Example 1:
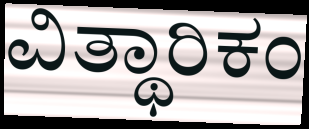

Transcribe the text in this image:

ವಿತ್ಥಾರಿಕಂ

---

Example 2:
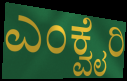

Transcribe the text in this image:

ಎಂಕ್ವೈರಿ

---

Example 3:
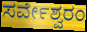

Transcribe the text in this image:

ಸರ್ವೇಶ್ವರಂ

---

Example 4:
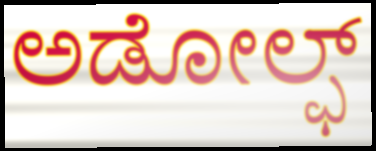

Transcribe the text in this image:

ಅಡೋಲ್ಫ್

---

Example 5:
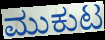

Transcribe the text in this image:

ಮುಕುಟ